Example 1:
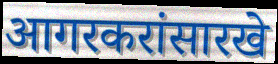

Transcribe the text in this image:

आगरकरांसारखे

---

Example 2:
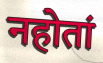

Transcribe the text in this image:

नहोतां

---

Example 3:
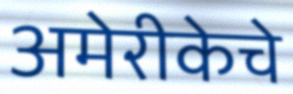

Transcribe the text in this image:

अमेरीकेचे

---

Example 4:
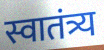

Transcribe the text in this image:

स्‍वातंत्र्य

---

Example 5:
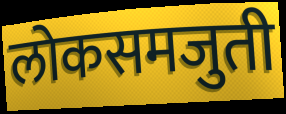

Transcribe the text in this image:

लोकसमजुती